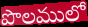
పొలములో